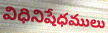
విధినిషేధములు